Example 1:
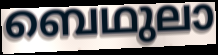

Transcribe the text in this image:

ബെഥുലാ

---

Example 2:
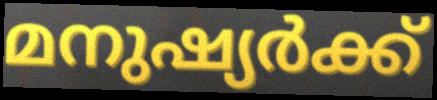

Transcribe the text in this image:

മനുഷ്യർക്ക്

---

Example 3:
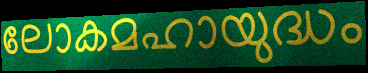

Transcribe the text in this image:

ലോകമഹായുദ്ധം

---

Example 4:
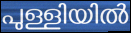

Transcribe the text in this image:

പുള്ളിയിൽ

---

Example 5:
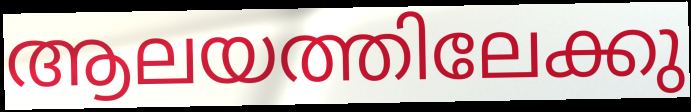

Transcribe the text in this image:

ആലയത്തിലേക്കു